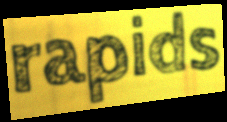
rapids